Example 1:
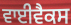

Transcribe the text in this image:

ਵਾਈਵੈਕਸ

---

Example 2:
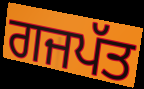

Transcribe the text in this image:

ਗਜਪੱਤ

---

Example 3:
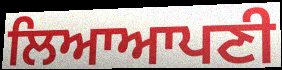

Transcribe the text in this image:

ਲਿਆਆਪਣੀ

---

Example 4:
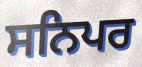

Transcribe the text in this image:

ਸਨਿਪਰ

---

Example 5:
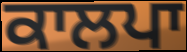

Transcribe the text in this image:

ਕਾਲਪਾ